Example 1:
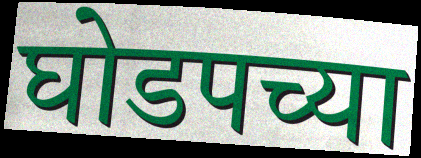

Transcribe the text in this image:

घोडपच्या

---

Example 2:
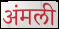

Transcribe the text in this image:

अंमली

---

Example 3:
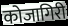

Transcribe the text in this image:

कोजागिरी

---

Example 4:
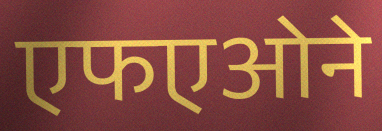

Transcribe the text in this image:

एफएओने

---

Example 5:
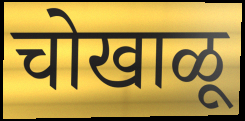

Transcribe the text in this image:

चोखाळू